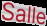
Salle